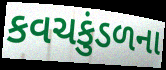
કવચકુંડળના